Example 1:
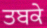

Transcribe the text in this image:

ਤਬਕੇ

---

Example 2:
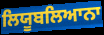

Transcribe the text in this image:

ਲਿਯੂਬਲਿਆਨਾ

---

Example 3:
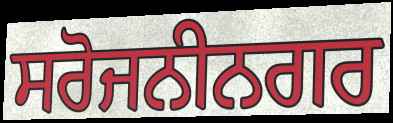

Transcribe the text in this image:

ਸਰੋਜਨੀਨਗਰ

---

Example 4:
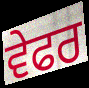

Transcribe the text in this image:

ਵੇਫਰ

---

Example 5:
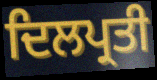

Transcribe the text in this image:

ਦਿਲਪ੍ਰਤੀ